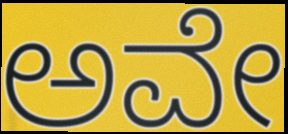
ಅವೇ